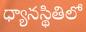
ధ్యానస్థితిలో